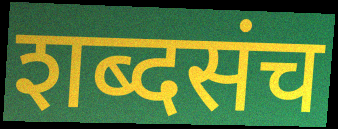
शब्दसंच